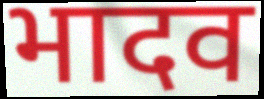
भादव